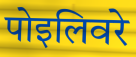
पोइलिवरे